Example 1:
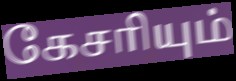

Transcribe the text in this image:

கேசரியும்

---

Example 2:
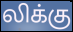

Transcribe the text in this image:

லிக்கு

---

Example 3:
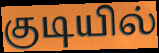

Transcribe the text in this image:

குடியில்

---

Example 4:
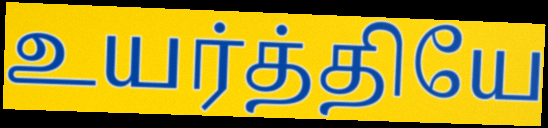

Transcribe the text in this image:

உயர்த்தியே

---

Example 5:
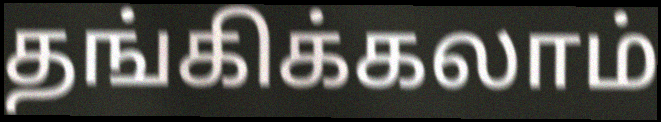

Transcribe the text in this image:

தங்கிக்கலாம்